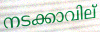
നടക്കാവില്